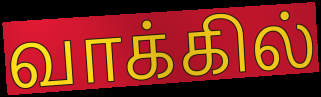
வாக்கில்